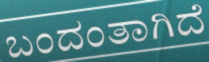
ಬಂದಂತಾಗಿದೆ